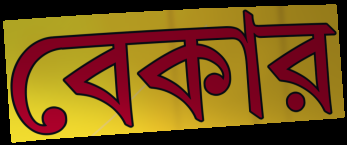
বেকার